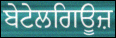
ਬੇਟੇਲਗਿਊਜ਼